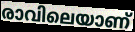
രാവിലെയാണ്